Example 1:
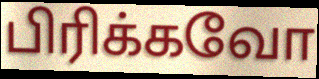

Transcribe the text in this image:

பிரிக்கவோ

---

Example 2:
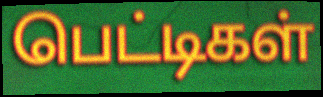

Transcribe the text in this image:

பெட்டிகள்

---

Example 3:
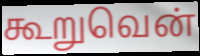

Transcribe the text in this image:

கூறுவென்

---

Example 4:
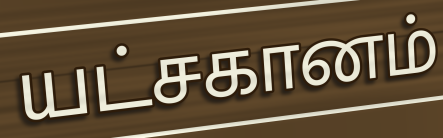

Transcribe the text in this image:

யட்சகானம்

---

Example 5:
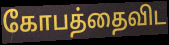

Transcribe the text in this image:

கோபத்தைவிட